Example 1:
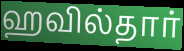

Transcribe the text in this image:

ஹவில்தார்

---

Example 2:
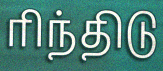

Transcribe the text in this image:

ரிந்திடு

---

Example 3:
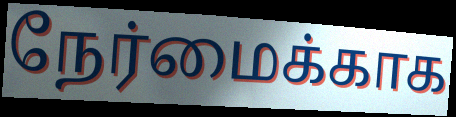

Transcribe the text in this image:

நேர்மைக்காக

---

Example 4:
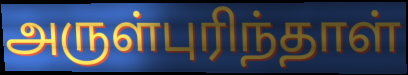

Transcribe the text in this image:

அருள்புரிந்தாள்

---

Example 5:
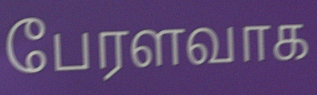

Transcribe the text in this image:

பேரளவாக